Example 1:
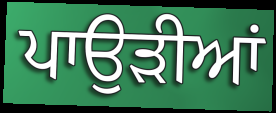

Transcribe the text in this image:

ਪਾਉੜੀਆਂ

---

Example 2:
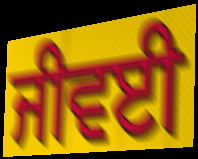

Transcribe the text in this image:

ਜੀਵਈ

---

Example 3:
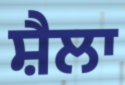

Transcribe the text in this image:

ਸ਼ੈਲਾ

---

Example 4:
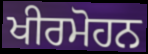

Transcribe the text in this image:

ਖੀਰਮੋਹਨ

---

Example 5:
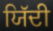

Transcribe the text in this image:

ਯਿੱਦੀ